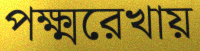
পক্ষ্মরেখায়